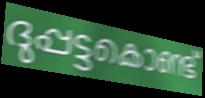
ദുപ്പട്ടകൊണ്ട്